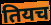
तियच